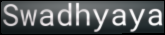
Swadhyaya